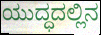
ಯುದ್ಧದಲ್ಲಿನ